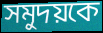
সমুদয়কে